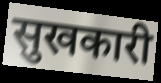
सुखकारी